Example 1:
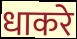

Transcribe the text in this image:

धाकरे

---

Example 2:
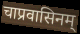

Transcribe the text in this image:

चाप्रवासिनम्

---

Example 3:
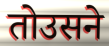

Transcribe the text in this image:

तोउसने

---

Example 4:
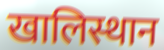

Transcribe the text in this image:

खालिस्थान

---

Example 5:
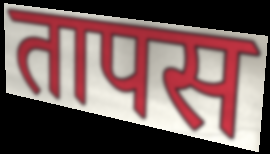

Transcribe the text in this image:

तापस